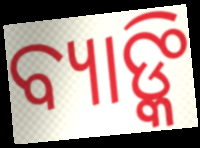
ବ୍ୟାଙ୍କି